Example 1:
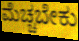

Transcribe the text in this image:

ಮೆಚ್ಚಬೇಕು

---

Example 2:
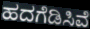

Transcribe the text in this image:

ಹದಗೆಡಿಸಿವೆ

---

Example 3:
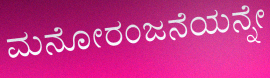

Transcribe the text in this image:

ಮನೋರಂಜನೆಯನ್ನೇ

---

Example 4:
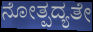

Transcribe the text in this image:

ನೋತ್ಪದ್ಯತೇ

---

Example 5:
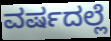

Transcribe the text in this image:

ವರ್ಷದಲ್ಲೆ